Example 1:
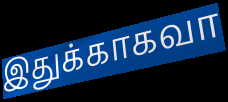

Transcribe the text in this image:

இதுக்காகவா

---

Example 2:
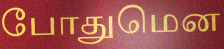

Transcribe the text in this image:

போதுமென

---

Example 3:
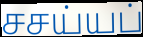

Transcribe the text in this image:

சசய்யப்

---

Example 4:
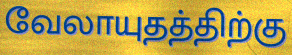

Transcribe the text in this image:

வேலாயுதத்திற்கு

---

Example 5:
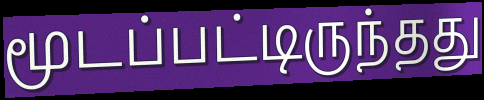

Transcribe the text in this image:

மூடப்பட்டிருந்தது